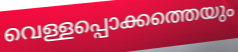
വെള്ളപ്പൊക്കത്തെയും